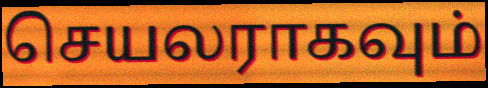
செயலராகவும்